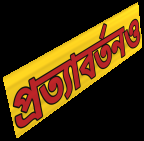
প্রত্যাবর্তনও